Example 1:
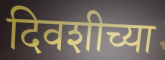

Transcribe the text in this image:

दिवशीच्या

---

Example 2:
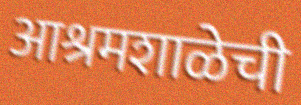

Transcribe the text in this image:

आश्रमशाळेची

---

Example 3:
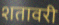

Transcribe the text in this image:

शतावरी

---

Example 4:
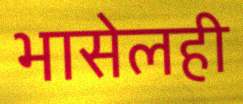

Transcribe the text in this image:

भासेलही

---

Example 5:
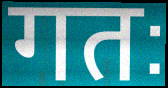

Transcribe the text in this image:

गतः